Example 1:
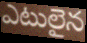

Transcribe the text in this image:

ఎటులైన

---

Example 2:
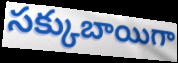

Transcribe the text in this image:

సక్కుబాయిగా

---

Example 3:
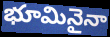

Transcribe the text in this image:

భూమినైనా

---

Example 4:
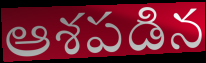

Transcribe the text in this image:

ఆశపడిన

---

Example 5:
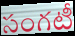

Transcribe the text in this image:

సంగటీ